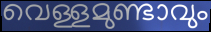
വെള്ളമുണ്ടാവും